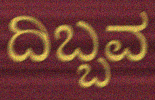
ದಿಬ್ಬವ